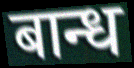
बान्ध